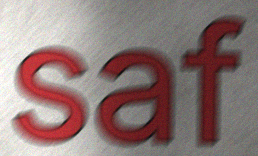
saf